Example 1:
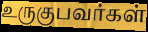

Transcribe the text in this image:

உருகுபவர்கள்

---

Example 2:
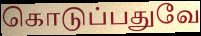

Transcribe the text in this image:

கொடுப்பதுவே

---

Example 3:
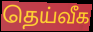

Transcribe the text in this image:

தெய்வீக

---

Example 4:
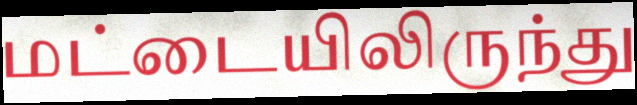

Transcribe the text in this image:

மட்டையிலிருந்து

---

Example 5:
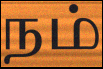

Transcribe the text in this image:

நம்